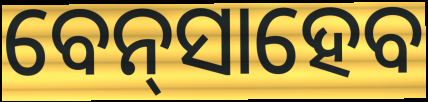
ବେନ୍‌ସାହେବ